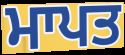
ਮਾਪਤ